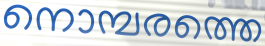
നൊമ്പരത്തെ